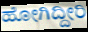
ಹೋಗಿದ್ದೀರಿ